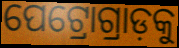
ପେଟ୍ରୋଗ୍ରାଡ଼କୁ